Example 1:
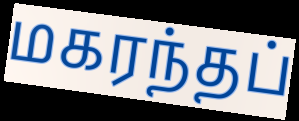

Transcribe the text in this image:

மகரந்தப்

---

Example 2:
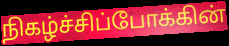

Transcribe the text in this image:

நிகழ்ச்சிப்போக்கின்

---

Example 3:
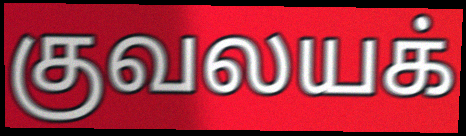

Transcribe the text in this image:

குவலயக்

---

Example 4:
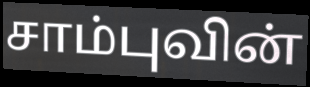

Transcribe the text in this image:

சாம்புவின்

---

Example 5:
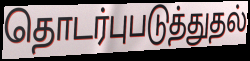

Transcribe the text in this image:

தொடர்புபடுத்துதல்